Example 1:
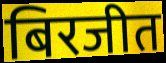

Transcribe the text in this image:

बिरजीत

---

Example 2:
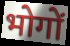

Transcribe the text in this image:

भोगों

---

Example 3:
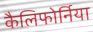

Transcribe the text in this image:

कैलिफोर्निया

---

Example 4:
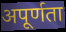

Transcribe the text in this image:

अपूर्णता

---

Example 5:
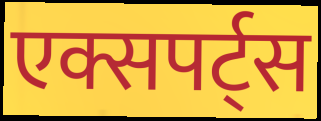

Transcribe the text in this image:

एक्सपर्ट्स